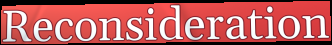
Reconsideration